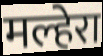
मल्हेरा